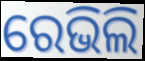
ରେଭିଲି